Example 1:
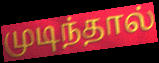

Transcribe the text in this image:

முடிந்தால்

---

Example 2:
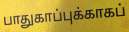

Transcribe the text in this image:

பாதுகாப்புக்காகப்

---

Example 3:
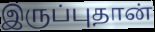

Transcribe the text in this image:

இருப்புதான்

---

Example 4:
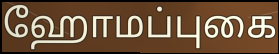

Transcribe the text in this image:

ஹோமப்புகை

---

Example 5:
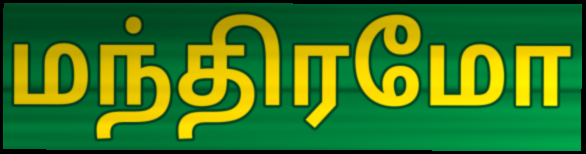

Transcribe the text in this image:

மந்திரமோ